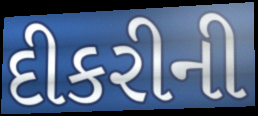
દીકરીની